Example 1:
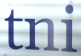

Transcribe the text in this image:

tni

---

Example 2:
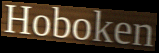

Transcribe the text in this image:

Hoboken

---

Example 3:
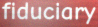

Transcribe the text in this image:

fiduciary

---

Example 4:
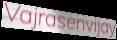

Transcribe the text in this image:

Vajrasenvijay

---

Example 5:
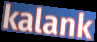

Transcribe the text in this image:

kalank